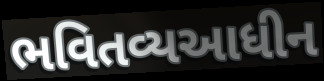
ભવિતવ્યઆધીન